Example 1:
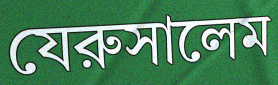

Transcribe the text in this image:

যেরুসালেম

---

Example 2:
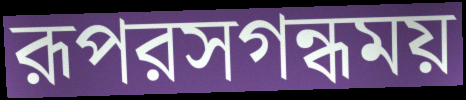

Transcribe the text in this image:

রূপরসগন্ধময়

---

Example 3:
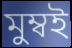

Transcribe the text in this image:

মুম্বই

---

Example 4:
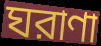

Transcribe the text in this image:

ঘরাণা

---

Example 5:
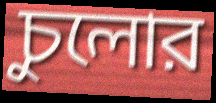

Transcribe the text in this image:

চুলোর